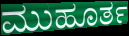
ಮುಹೂರ್ತ